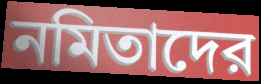
নমিতাদের